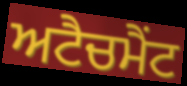
ਅਟੈਚਮੈਂਟ